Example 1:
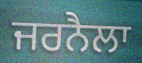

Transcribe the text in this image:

ਜਰਨੈਲਾ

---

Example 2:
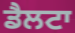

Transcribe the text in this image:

ਡੈਲਟਾ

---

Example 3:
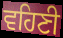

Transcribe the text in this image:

ਵਹਿਣੀ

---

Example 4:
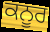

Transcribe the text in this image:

ਕਨੂਰ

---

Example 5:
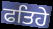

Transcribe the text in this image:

ਫਤਿਹੇ